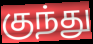
குந்து